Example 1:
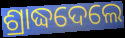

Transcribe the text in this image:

ଶ୍ରାଦ୍ଧଦେଲେ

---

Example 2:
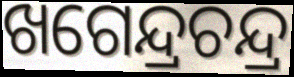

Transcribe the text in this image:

ଖଗେନ୍ଦ୍ରଚନ୍ଦ୍ର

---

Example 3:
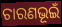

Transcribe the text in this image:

ଚାରଣଭୂଇଁ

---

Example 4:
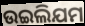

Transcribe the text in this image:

ଉଇଲିଯମ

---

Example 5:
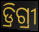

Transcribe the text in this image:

ଡ୍ରିଗ୍ରୀ